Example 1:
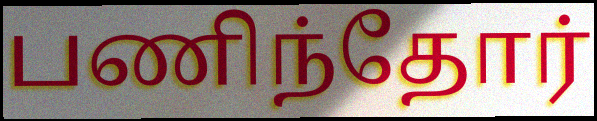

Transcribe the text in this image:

பணிந்தோர்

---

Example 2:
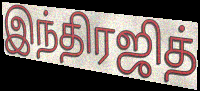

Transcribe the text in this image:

இந்திரஜித்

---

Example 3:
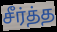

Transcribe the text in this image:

சீர்த்த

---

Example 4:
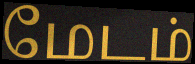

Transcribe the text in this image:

மேடம்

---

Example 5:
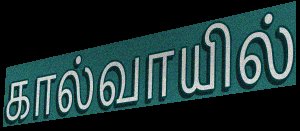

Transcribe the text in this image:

கால்வாயில்